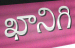
ఖానిగి